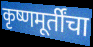
कृष्णमूर्तींचा